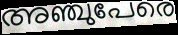
അഞ്ചുപേരെ